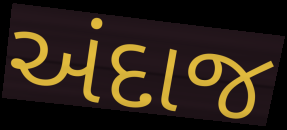
અંદાજ